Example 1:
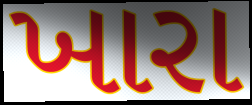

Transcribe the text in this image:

ખારા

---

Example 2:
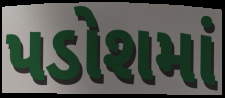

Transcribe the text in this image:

પડોશમાં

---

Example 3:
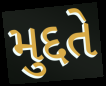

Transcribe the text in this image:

મુદ્દતે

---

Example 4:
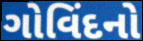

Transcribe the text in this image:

ગોવિંદનો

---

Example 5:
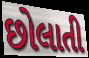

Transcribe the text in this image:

છોલાતી